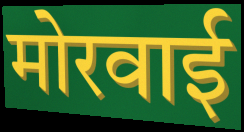
मोरवाई